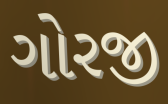
ગોરજી